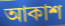
আকাশ